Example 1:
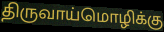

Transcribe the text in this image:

திருவாய்மொழிக்கு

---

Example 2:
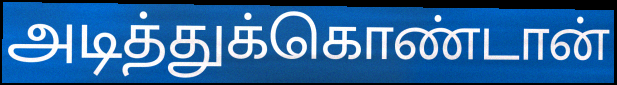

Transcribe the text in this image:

அடித்துக்கொண்டான்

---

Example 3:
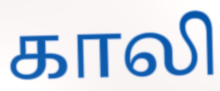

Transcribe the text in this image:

காலி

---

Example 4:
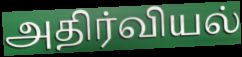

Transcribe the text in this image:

அதிர்வியல்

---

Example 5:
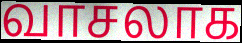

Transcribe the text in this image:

வாசலாக